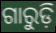
ଗାରୁଡ଼ି